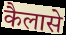
कैलासे